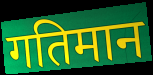
गतिमान